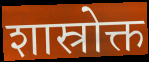
शास्रोक्त